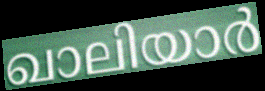
ഖാലിയാർ